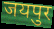
जयपुर